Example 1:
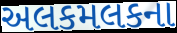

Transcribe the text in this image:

અલકમલકના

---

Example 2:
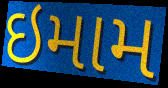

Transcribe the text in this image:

ઇમામ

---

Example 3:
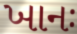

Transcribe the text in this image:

ખાનઃ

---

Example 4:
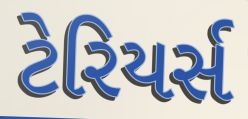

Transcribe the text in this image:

ટેરિયર્સ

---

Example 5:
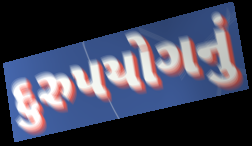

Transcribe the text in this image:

દુરુપયોગનું